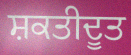
ਸ਼ਕਤੀਦੂਤ